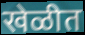
खेळीत